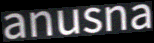
anusna